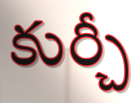
కుర్చీ